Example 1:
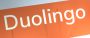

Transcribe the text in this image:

Duolingo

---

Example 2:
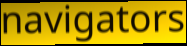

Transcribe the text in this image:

navigators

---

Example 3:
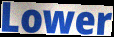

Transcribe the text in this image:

Lower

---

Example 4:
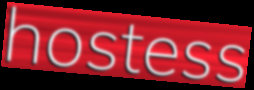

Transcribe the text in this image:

hostess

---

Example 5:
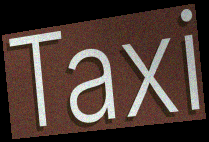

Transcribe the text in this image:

Taxi